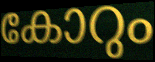
കോറും